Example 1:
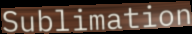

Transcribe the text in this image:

Sublimation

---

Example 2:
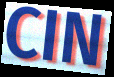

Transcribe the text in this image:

CIN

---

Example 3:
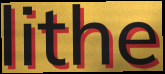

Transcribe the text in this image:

lithe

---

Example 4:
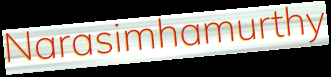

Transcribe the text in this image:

Narasimhamurthy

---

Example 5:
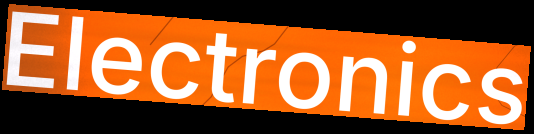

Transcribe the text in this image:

Electronics